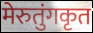
मेरुतुंगकृत